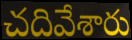
చదివేశారు